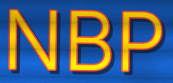
NBP